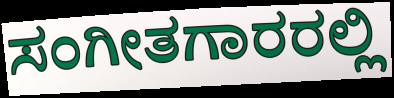
ಸಂಗೀತಗಾರರಲ್ಲಿ